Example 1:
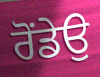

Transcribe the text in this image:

ਰੋਂਡੇਉ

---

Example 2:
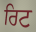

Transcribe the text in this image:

ਰਿਟ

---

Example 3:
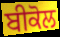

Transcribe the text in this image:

ਬੀਕੋਲ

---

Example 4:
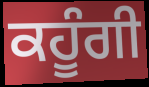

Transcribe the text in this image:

ਕਹੂੰਗੀ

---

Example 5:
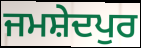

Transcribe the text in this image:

ਜਮਸ਼ੇਦਪੁਰ